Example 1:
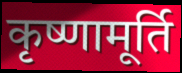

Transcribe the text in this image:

कृष्णामूर्ति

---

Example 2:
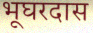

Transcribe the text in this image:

भूघरदास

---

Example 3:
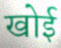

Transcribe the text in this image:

खोई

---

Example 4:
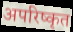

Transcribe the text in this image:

अपरिष्कृत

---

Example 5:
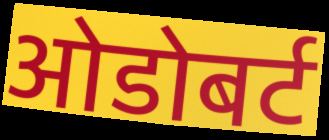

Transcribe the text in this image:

ओडोबर्ट